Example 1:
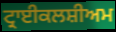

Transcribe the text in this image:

ਟ੍ਰਾਈਕਲਸ਼ੀਅਮ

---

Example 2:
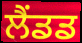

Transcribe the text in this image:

ਲੈਂਡਡ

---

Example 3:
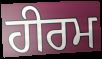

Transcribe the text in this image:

ਹੀਰਮ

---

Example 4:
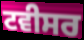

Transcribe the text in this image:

ਟਵੀਸਰ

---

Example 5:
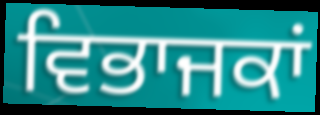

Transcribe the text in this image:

ਵਿਭਾਜਕਾਂ